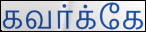
கவர்க்கே